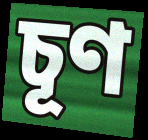
চূণ